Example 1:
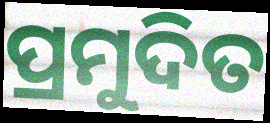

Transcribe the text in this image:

ପ୍ରମୁଦିତ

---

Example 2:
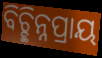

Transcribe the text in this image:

ବିଚ୍ଛିନ୍ନପ୍ରାୟ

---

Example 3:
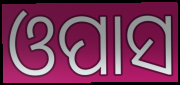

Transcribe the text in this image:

ଓପାସ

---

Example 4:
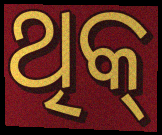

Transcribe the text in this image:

ଥିକ୍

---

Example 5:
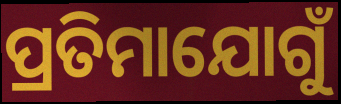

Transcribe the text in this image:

ପ୍ରତିମାଯୋଗୁଁ